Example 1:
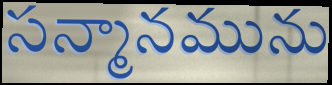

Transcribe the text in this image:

సన్మానమును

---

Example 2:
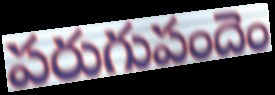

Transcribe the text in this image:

పరుగుపందెం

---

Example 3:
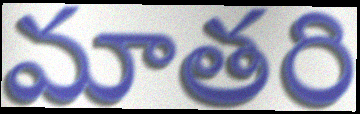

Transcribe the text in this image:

మాతరి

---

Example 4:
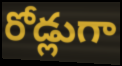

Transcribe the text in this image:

రోడ్లుగా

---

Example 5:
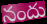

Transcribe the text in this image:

నందు